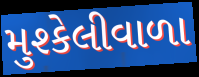
મુશ્કેલીવાળા